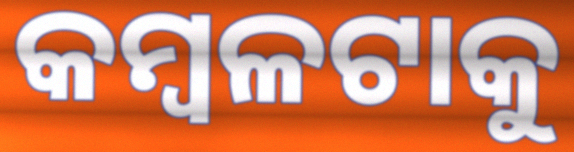
କମ୍ବଳଟାକୁ